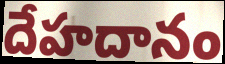
దేహదానం